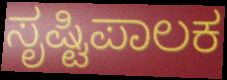
ಸೃಷ್ಟಿಪಾಲಕ